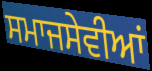
ਸਮਾਜਸੇਵੀਆਂ